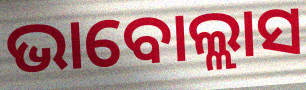
ଭାବୋଲ୍ଲାସ